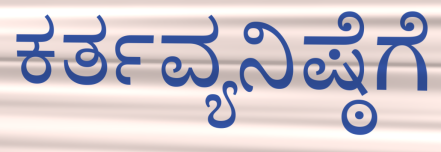
ಕರ್ತವ್ಯನಿಷ್ಠೆಗೆ